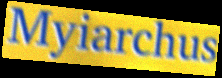
Myiarchus